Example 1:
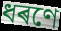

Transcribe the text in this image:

ধৰণে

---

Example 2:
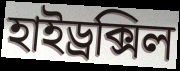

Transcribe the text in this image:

হাইড্ৰক্সিল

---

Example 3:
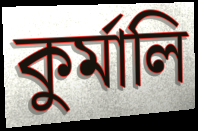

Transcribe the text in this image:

কুৰ্মালি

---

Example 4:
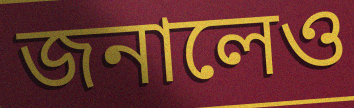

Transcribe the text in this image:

জনালেও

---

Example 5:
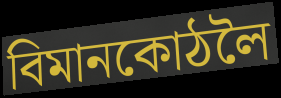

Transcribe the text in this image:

বিমানকোঠলৈ